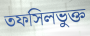
তফসিলভুক্ত